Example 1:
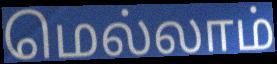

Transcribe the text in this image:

மெல்லாம்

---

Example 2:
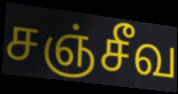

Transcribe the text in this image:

சஞ்சீவ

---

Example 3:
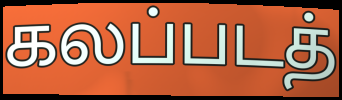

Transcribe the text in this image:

கலப்படத்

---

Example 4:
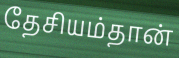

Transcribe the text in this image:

தேசியம்தான்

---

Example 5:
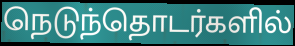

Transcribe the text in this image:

நெடுந்தொடர்களில்